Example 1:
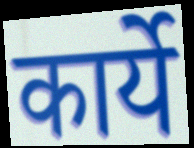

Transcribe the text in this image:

कार्ये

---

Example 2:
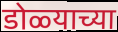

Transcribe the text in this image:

डोळ्याच्या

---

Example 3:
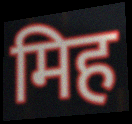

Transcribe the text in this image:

मिह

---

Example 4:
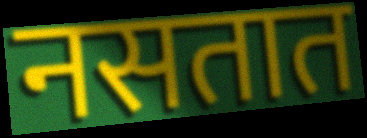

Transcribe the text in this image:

नसतात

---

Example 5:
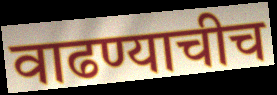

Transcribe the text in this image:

वाढण्याचीच